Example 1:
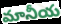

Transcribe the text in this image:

మానీయ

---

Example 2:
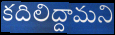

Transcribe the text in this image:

కదిలిద్దామని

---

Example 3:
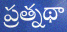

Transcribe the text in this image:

ప్రత్నథా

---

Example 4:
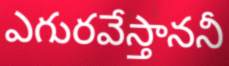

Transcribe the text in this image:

ఎగురవేస్తాననీ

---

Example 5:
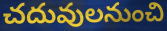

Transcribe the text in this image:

చదువులనుంచి